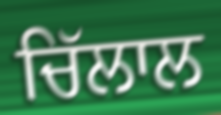
ਚਿੱਲਾਲ